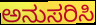
ಅನುಸರಿಸಿ